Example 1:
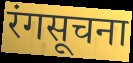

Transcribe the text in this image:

रंगसूचना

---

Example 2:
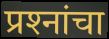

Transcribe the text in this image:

प्रश्‍नांचा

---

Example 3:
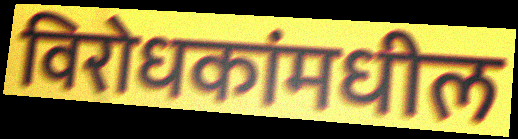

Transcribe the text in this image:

विरोधकांमधील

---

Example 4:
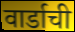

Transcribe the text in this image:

वार्डाची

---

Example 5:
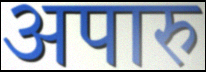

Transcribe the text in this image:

अपारु